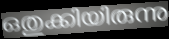
ഒതുക്കിയിരുന്നു